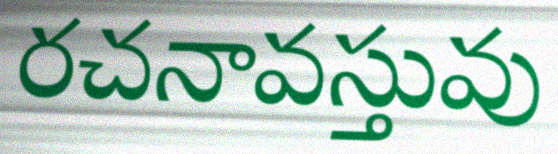
రచనావస్తువు